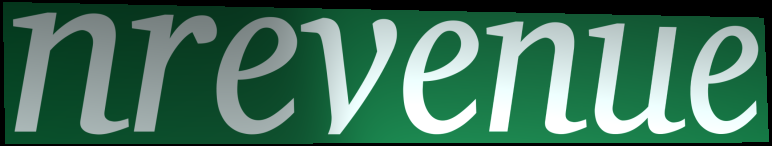
nrevenue